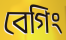
বেগিং